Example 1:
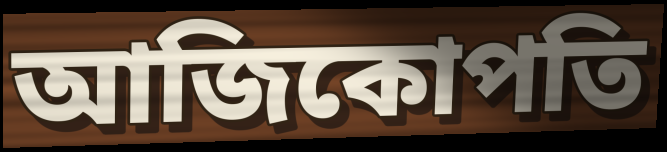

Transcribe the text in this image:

আজিকোপতি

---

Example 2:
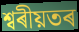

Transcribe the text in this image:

শ্বৰীয়তৰ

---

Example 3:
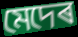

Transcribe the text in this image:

মেদেৰ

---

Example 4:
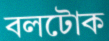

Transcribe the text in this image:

বলটোক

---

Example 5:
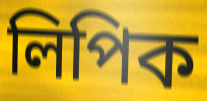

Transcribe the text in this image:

লিপিক